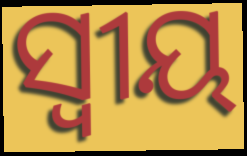
ସ୍ବୀୟ